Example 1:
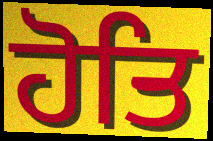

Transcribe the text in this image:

ਹੋਤਿ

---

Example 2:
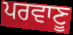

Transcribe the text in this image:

ਪਰਵਾਣੂ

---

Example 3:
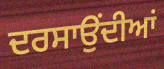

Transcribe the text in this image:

ਦਰਸਾਉਂਦੀਆਂ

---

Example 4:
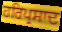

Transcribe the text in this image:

ਹਰਿਪ੍ਰਸਾਦ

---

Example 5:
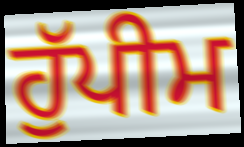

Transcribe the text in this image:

ਹੁੱਪੀਮ